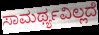
ಸಾಮರ್ಥ್ಯವಿಲ್ಲದೆ